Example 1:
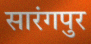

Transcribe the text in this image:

सारंगपुर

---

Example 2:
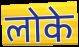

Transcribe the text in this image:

लोके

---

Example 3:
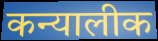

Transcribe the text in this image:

कन्यालीक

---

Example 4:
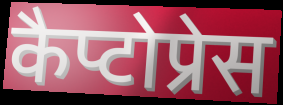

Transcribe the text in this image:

कैप्टोप्रेस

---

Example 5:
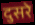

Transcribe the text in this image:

दुसरे